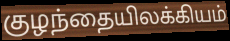
குழந்தையிலக்கியம்